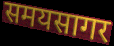
समयसागर